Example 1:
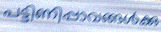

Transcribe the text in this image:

പട്ടിണിപ്പാവങ്ങൾക്കു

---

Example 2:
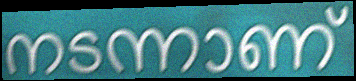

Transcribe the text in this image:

നടന്നാണ്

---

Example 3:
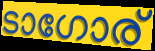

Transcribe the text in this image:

ടാഗോര്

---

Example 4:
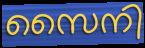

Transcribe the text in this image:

സൈനി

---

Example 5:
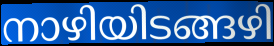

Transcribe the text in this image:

നാഴിയിടങ്ങഴി